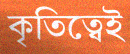
কৃতিত্বেই